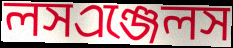
লসএঞ্জেলস